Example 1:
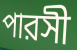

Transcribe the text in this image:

পারসী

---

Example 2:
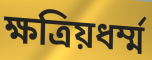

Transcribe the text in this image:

ক্ষত্রিয়ধর্ম্ম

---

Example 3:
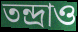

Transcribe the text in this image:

তন্দ্রাও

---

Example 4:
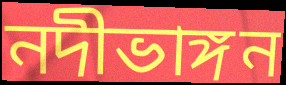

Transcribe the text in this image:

নদীভাঙ্গন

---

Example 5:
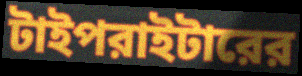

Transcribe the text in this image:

টাইপরাইটারের